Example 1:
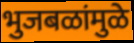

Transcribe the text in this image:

भुजबळांमुळे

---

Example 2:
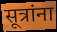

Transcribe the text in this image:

सूत्रांना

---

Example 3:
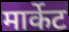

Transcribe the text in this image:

मार्केट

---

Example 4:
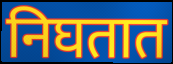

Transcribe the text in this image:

निघतात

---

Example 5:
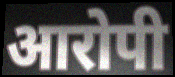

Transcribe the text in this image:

आरोपी